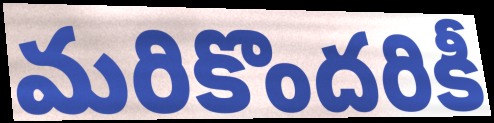
మరికొందరికీ